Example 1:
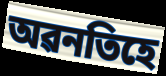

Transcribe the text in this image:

অৱনতিহে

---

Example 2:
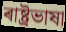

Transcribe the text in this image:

ৰাষ্ট্ৰভাষা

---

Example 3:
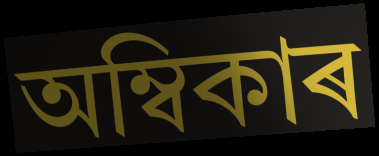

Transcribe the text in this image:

অম্বিকাৰ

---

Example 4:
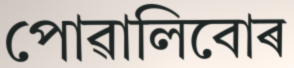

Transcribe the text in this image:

পোৱালিবোৰ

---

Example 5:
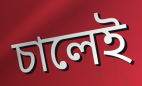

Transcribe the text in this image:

চালেই